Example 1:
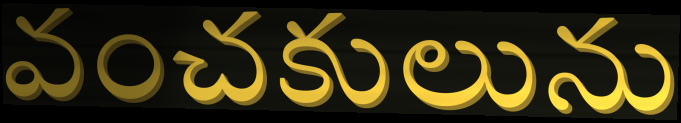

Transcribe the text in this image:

వంచకులును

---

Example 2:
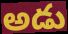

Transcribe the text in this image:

అడు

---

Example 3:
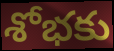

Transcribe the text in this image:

శోభకు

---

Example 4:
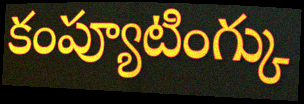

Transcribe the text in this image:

కంప్యూటింగ్కు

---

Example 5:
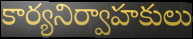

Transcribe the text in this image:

కార్యనిర్వాహకులు